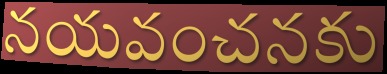
నయవంచనకు